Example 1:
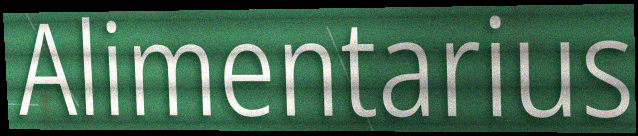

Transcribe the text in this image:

Alimentarius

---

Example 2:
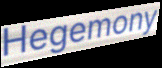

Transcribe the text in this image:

Hegemony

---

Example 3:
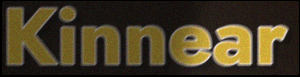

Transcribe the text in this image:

Kinnear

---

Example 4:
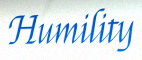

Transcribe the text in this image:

Humility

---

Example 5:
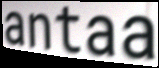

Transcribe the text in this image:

antaa